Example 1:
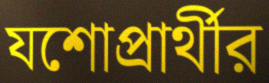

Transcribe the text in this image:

যশোপ্রার্থীর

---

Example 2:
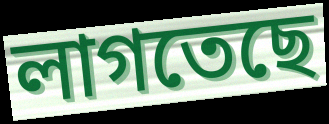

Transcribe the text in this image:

লাগতেছে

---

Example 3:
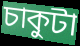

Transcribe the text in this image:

চাকুটা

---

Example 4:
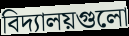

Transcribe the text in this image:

বিদ্যালয়গুলো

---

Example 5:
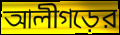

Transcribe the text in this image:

আলীগড়ের